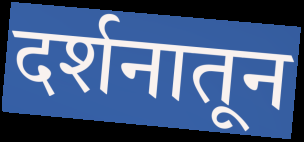
दर्शनातून